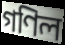
গণিল